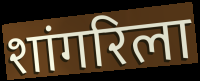
शांगरिला